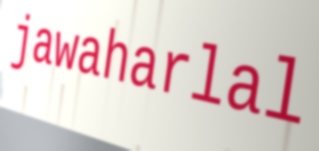
jawaharlal